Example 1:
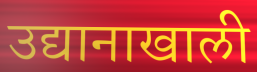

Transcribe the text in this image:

उद्यानाखाली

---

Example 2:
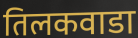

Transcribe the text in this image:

तिलकवाडा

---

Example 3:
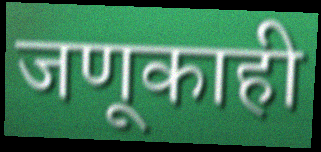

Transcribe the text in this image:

जणूकाही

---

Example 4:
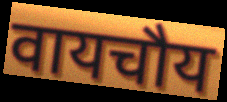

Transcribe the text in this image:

वायचौय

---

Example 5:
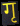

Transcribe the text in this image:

गृ